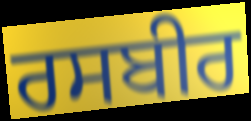
ਰਸਬੀਰ